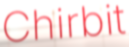
Chirbit